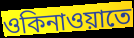
ওকিনাওয়াতে